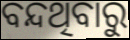
ବନ୍ଦଥିବାରୁ